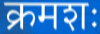
क्रमशः